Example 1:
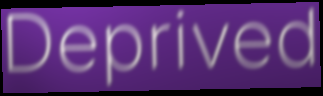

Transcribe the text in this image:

Deprived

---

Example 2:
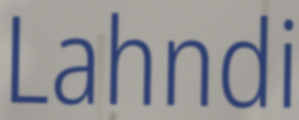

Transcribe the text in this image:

Lahndi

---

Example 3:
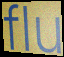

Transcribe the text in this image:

flu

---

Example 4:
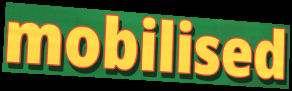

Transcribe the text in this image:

mobilised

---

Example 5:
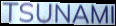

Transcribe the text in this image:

TSUNAMI